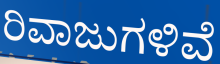
ರಿವಾಜುಗಳಿವೆ